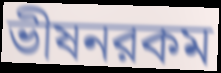
ভীষনরকম